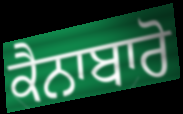
ਕੈਨਾਬਾਰੋ